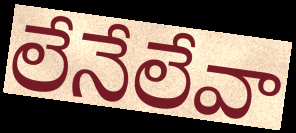
లేనేలేవా